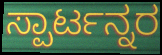
ಸ್ಪಾರ್ಟನ್ನರ